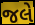
જલે